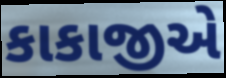
કાકાજીએ